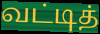
வட்டித்